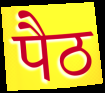
पैठ